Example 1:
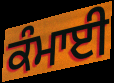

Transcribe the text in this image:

ਕੰਮਾਈ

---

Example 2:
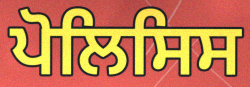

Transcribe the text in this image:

ਪੋਲਿਸਿਸ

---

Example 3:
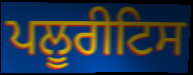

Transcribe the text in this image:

ਪਲੂਰੀਟਿਸ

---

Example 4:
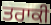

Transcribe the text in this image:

ਤਰਾਕੀ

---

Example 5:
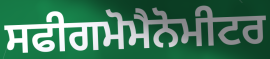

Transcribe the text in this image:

ਸਫੀਗਮੋਮੈਨੋਮੀਟਰ